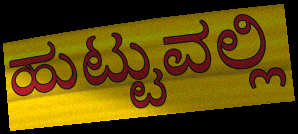
ಹುಟ್ಟುವಲ್ಲಿ